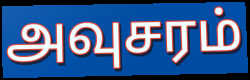
அவுசரம்